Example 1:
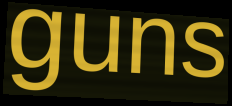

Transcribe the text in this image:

guns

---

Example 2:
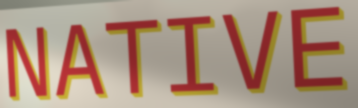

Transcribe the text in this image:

NATIVE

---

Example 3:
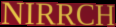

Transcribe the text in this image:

NIRRCH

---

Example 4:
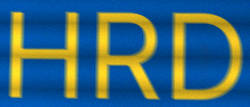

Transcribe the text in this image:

HRD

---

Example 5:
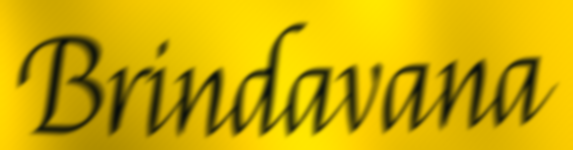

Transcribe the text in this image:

Brindavana